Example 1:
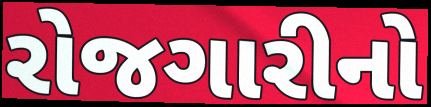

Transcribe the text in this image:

રોજગારીનો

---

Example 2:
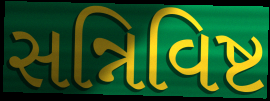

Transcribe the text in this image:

સન્નિવિષ્ટ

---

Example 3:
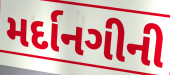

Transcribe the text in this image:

મર્દાનગીની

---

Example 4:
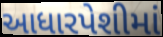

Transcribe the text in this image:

આધારપેશીમાં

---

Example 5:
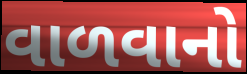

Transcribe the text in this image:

વાળવાનો